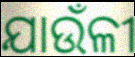
ଯାଉଁଳୀ